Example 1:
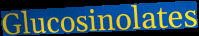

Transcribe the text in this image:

Glucosinolates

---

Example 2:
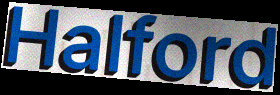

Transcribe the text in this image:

Halford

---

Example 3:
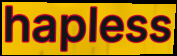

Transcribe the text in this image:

hapless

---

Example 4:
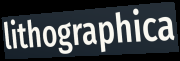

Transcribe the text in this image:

lithographica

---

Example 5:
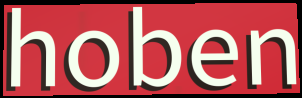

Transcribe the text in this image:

hoben